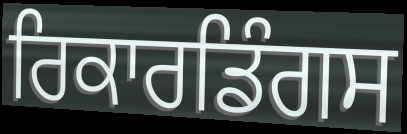
ਰਿਕਾਰਡਿੰਗਸ